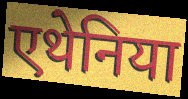
एथेनिया